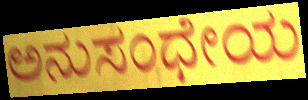
ಅನುಸಂಧೇಯ